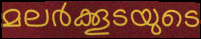
മലർക്കൂടയുടെ